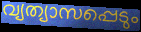
വ്യത്യാസപ്പെടും